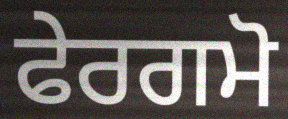
ਫੇਰਗਮੋ